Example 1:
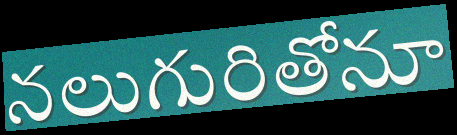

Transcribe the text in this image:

నలుగురితోనూ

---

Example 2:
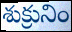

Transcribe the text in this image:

శుక్రునిం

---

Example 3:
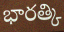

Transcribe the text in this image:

భారత్కి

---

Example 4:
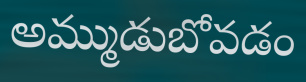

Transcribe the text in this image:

అమ్ముడుబోవడం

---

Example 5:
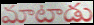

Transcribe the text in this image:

మాటాడు